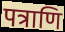
पत्राणि